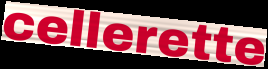
cellerette